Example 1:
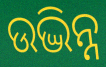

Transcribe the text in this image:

ଉଦ୍ଭିନ୍ନ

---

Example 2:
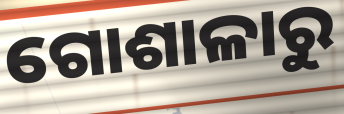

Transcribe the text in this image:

ଗୋଶାଳାରୁ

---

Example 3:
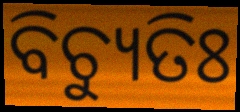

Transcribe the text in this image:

ବିଚ୍ୟୁତିଃ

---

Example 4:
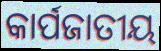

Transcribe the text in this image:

କାର୍ପଜାତୀୟ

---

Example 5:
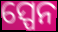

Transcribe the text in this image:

ସ୍ପେନ